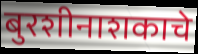
बुरशीनाशकाचे